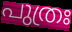
പുത്രഃ